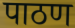
पाठण